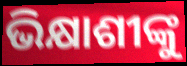
ଭିକ୍ଷାଶୀଙ୍କୁ